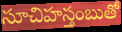
సూచిహస్తంబుతో